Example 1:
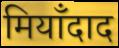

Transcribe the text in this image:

मियाँदाद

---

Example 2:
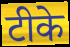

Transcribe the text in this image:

टीके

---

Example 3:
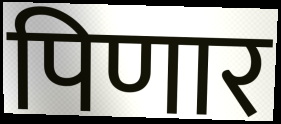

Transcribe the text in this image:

पिणार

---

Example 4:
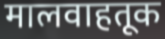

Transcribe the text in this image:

मालवाहतूक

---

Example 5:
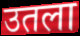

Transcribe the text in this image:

उतला